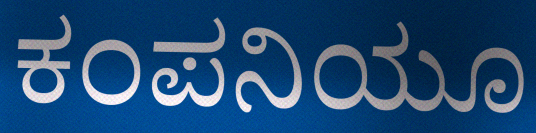
ಕಂಪನಿಯೂ